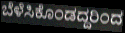
ಬೆಳೆಸಿಕೊಂಡದ್ದರಿಂದ